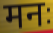
मनः